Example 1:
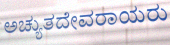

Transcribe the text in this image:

ಅಚ್ಯುತದೇವರಾಯರು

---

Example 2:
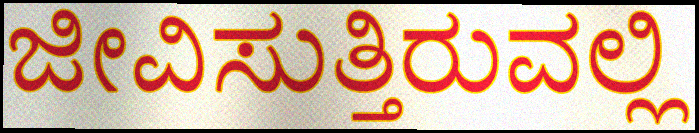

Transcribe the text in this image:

ಜೀವಿಸುತ್ತಿರುವಲ್ಲಿ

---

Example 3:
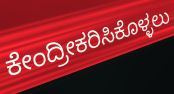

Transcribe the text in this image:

ಕೇಂದ್ರೀಕರಿಸಿಕೊಳ್ಳಲು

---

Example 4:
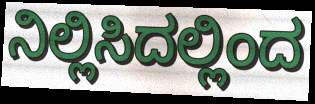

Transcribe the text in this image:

ನಿಲ್ಲಿಸಿದಲ್ಲಿಂದ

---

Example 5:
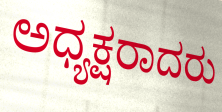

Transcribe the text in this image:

ಅಧ್ಯಕ್ಷರಾದರು